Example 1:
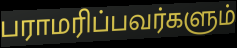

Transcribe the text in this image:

பராமரிப்பவர்களும்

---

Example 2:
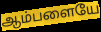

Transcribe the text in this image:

ஆம்பளையே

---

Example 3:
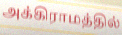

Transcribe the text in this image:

அக்கிராமத்தில்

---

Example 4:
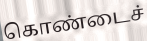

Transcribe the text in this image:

கொண்டைச்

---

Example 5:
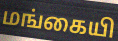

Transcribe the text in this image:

மங்கையி